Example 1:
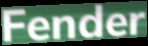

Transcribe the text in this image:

Fender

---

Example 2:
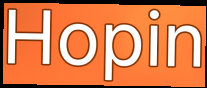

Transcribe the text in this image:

Hopin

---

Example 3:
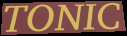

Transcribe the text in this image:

TONIC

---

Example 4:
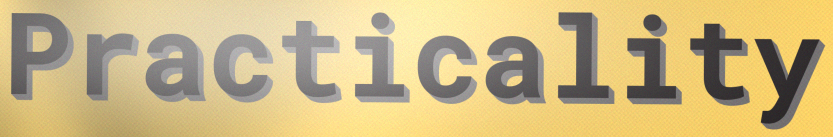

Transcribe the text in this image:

Practicality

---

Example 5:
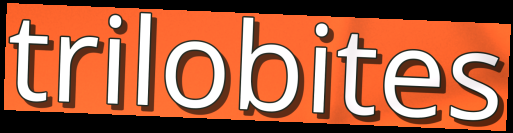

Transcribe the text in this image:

trilobites